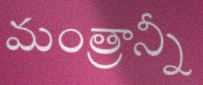
మంత్రాన్నీ